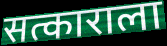
सत्काराला